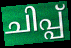
ചിപ്പ്